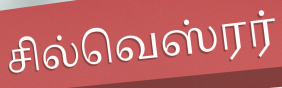
சில்வெஸ்ரர்